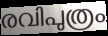
രവിപുത്രം